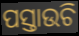
ପସ୍ତାଉଚି